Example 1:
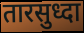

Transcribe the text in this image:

तारसुध्दा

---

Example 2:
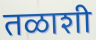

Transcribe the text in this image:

तळाशी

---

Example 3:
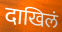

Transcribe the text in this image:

दाखिलं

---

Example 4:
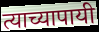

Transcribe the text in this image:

त्याच्यापायी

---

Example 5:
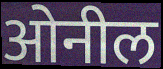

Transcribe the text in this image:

ओनील